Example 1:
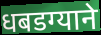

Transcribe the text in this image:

धबडग्याने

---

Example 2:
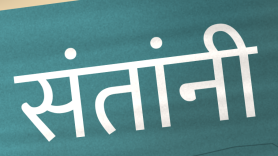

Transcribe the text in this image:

संतांनी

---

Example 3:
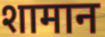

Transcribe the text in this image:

शामान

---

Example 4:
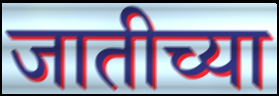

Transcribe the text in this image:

जातीच्या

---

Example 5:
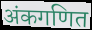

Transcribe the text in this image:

अंकगणित